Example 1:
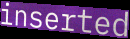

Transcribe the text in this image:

inserted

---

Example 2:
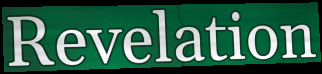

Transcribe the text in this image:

Revelation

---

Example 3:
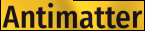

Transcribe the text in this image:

Antimatter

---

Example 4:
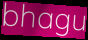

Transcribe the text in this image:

bhagu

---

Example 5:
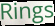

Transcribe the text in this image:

Rings